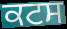
ਕਟਸ